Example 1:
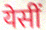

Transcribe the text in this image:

येसीं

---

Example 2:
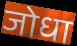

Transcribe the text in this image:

जोधा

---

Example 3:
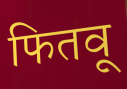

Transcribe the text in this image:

फितवू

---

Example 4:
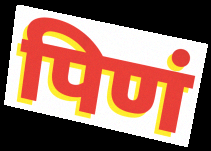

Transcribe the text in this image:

पिणं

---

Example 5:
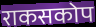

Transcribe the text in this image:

राकसकोप